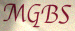
MGBS